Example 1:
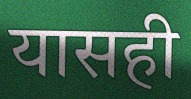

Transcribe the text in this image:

यासही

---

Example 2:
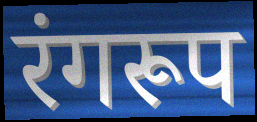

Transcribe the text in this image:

रंगरूप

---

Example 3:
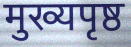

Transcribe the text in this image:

मुख्यपृष्ठ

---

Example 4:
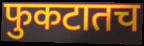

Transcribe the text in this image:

फुकटातच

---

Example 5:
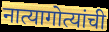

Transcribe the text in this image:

नात्यागोत्यांची